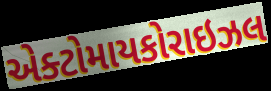
એક્ટોમાયકોરાઇઝલ